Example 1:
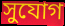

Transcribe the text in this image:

সুযোগ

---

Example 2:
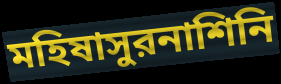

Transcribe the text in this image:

মহিষাসুরনাশিনি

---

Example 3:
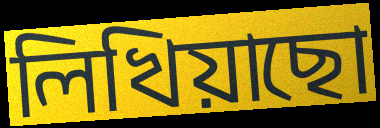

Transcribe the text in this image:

লিখিয়াছো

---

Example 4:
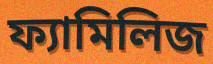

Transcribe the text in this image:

ফ্যামিলিজ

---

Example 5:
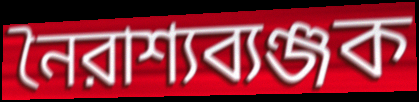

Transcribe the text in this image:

নৈরাশ্যব্যঞ্জক